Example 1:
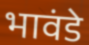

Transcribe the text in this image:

भावंडे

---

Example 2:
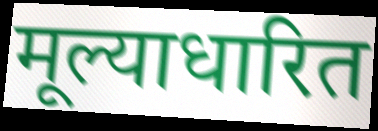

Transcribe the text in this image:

मूल्याधारित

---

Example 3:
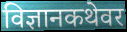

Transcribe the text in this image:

विज्ञानकथेवर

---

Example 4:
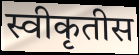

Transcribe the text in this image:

स्वीकृतीस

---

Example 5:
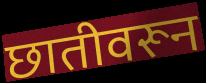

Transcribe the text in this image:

छातीवरून